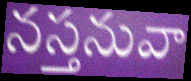
నస్తనువా